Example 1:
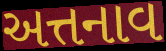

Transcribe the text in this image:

અત્તનાવ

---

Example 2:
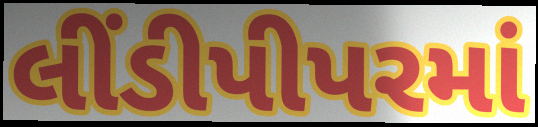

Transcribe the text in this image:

લીંડીપીપરમાં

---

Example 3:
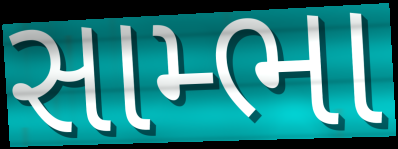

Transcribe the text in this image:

સામ્ભા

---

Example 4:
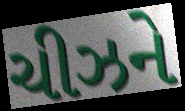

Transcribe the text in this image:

ચીઝને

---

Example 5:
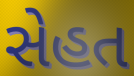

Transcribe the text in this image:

સેહત